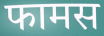
फामस